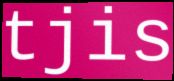
tjis